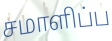
சமாளிப்ப